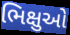
ભિક્ષુઓ